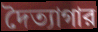
দৈত্যাগার